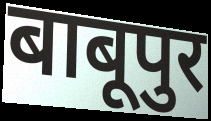
बाबूपुर